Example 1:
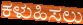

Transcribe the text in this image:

ಕಳುಹಿಸಲು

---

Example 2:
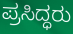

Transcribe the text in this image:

ಪ್ರಸಿದ್ಧರು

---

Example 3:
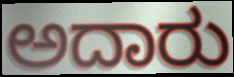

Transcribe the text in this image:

ಅದಾರು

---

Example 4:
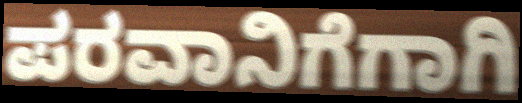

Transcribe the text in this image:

ಪರವಾನಿಗೆಗಾಗಿ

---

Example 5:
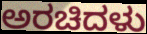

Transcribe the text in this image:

ಅರಚಿದಳು